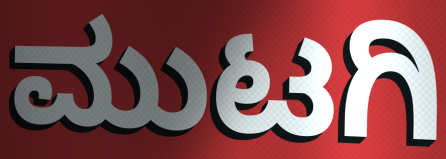
ಮುಟಗಿ